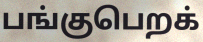
பங்குபெறக்